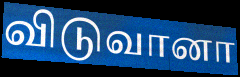
விடுவானா